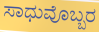
ಸಾಧುವೊಬ್ಬರ